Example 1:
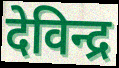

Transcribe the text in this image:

देविन्द्र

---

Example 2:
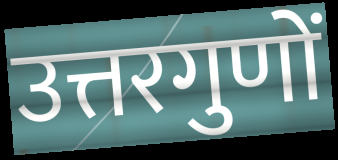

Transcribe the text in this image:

उत्तरगुणों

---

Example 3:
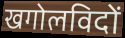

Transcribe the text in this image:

खगोलविदों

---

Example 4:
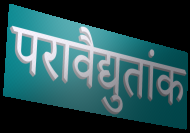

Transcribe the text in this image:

परावैद्युतांक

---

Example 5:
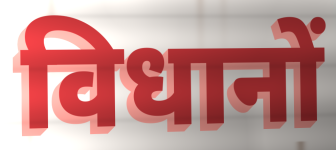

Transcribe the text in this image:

विधानों